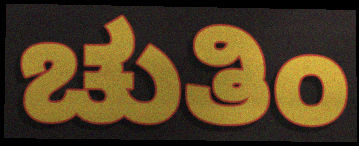
ಚುತಿಂ